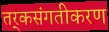
तर्कसंगतीकरण